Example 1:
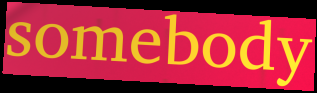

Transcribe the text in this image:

somebody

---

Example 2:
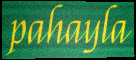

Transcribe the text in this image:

pahayla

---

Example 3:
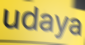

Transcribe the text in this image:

udaya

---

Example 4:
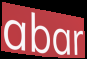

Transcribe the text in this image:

abar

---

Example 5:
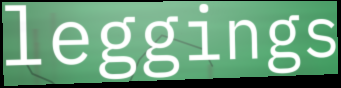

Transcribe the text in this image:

leggings